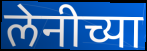
लेनीच्या